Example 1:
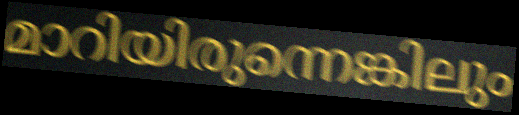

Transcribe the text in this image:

മാറിയിരുന്നെങ്കിലും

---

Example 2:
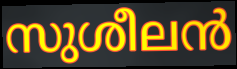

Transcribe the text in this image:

സുശീലൻ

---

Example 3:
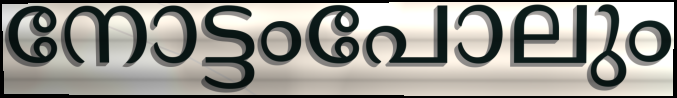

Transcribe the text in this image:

നോട്ടംപോലും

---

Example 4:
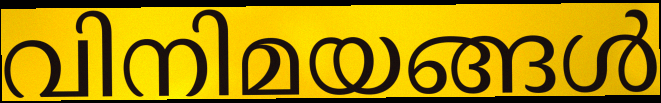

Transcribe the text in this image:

വിനിമയങ്ങൾ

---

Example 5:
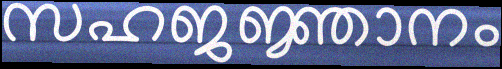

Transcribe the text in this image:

സഹജജ്ഞാനം